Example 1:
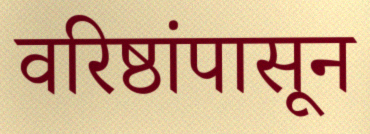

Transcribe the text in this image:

वरिष्ठांपासून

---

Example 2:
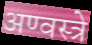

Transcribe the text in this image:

अण्वस्त्रे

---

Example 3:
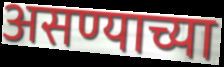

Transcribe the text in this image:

असण्याच्या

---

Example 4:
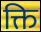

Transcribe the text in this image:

क्ति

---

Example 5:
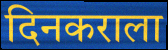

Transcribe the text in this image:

दिनकराला